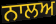
ਨਾਲਅ